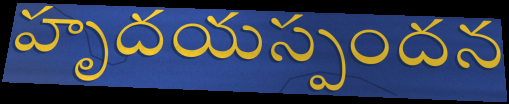
హృదయస్పందన